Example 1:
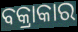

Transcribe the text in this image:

ବକ୍ରାକାର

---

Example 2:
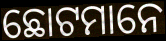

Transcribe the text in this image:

ଛୋଟମାନେ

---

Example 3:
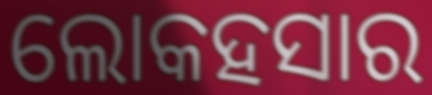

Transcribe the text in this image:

ଲୋକହସାର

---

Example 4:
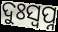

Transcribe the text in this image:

ଦୁଃସ୍ଵପ୍ନ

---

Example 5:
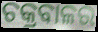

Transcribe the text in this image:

ଚକ୍ରବାଳର